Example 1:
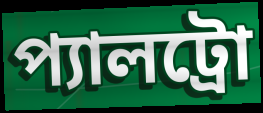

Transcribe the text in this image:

প্যালট্রো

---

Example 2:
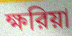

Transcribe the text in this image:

ক্ষরিয়া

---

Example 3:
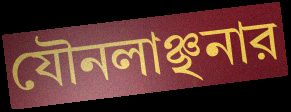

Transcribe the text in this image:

যৌনলাঞ্ছনার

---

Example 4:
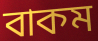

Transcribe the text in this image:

বাকম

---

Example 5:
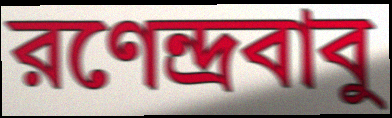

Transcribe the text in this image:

রণেন্দ্রবাবু